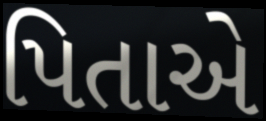
પિતાએ